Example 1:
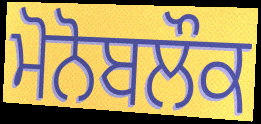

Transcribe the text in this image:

ਮੋਨੋਬਲੌਕ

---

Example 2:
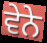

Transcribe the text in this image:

ਵੇਨੇ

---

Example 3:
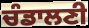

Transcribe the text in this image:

ਚੰਡਾਲਣੀ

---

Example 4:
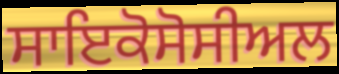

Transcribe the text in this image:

ਸਾਇਕੋਸੋਸੀਅਲ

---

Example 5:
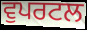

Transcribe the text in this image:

ਵੁਪਰਟਲ